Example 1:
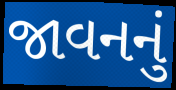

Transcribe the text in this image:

જાવનનું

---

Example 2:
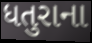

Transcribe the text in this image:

ધતુરાના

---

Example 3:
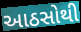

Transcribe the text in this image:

આઠસોથી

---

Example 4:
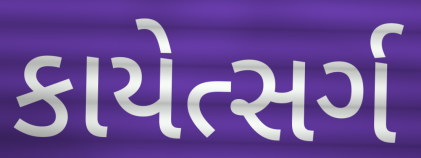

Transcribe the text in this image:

કાયેત્સર્ગ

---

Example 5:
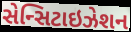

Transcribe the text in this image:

સેન્સિટાઇઝેશન